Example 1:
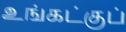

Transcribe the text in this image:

உங்கட்குப்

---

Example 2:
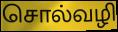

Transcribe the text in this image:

சொல்வழி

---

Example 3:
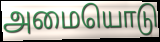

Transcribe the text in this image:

அமையொடு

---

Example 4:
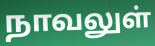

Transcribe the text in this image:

நாவலுள்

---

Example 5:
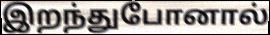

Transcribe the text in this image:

இறந்துபோனால்